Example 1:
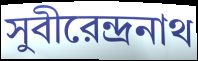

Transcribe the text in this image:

সুবীরেন্দ্রনাথ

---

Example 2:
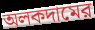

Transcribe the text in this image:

অলকদামের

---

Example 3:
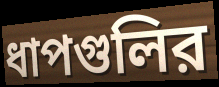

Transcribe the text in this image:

ধাপগুলির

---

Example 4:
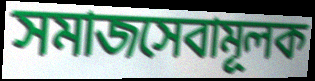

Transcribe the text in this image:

সমাজসেবামূলক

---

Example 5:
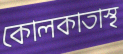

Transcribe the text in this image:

কোলকাতাস্থ